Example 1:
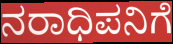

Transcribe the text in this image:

ನರಾಧಿಪನಿಗೆ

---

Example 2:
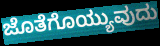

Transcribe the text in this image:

ಜೊತೆಗೊಯ್ಯುವುದು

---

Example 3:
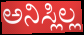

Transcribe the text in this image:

ಅನಿಸ್ಲಿಲ್ಲ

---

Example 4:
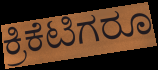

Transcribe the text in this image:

ಕ್ರಿಕೆಟಿಗರೂ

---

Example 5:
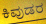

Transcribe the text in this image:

ಕಿವುಡರ